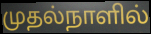
முதல்நாளில்